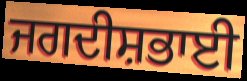
ਜਗਦੀਸ਼ਭਾਈ